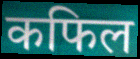
कफिल